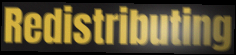
Redistributing